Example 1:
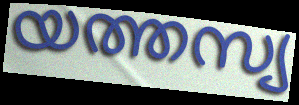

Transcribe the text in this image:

യത്തസ്യ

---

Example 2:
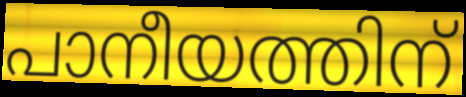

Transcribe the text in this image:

പാനീയത്തിന്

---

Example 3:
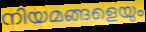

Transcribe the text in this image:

നിയമങ്ങളെയും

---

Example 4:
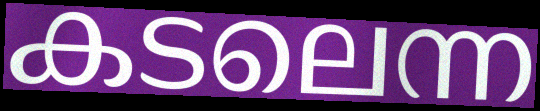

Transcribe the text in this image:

കടലെന്ന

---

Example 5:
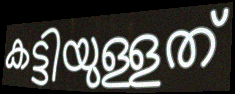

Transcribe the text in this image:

കട്ടിയുള്ളത്